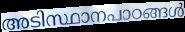
അടിസ്ഥാനപാഠങ്ങൾ